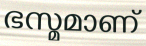
ഭസ്മമാണ്